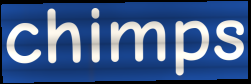
chimps